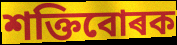
শক্তিবোৰক